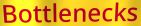
Bottlenecks